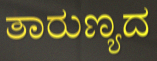
ತಾರುಣ್ಯದ